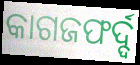
କାଗଜଫର୍ଦ୍ଦ